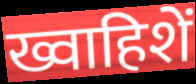
ख्वाहिशें